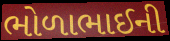
ભોળાભાઈની